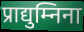
प्राद्युम्निना